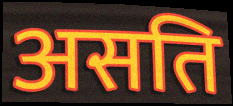
असति